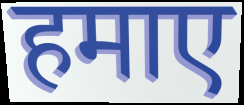
हमाए